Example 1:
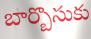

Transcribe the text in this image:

బార్బొసుకు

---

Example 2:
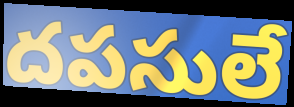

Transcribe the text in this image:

దపసులే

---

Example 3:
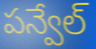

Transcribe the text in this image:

పన్వేల్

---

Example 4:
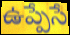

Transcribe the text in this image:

ఉప్పేసే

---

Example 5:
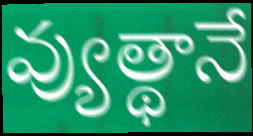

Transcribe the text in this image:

వ్యుత్థానే